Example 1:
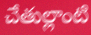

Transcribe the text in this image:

చేతుల్లాంటి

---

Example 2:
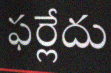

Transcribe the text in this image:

ఫర్లేదు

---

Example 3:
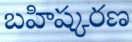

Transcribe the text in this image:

బహిష్కరణ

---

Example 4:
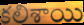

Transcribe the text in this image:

కలిశాయి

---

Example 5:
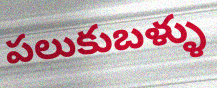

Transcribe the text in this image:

పలుకుబళ్ళు